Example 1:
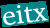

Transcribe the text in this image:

eitx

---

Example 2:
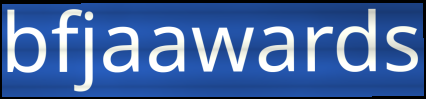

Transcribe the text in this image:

bfjaawards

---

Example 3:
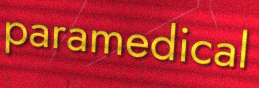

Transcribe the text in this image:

paramedical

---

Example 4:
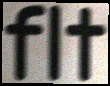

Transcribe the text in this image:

flt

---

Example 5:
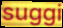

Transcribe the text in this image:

suggi